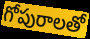
గోపురాలతో